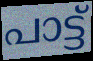
പാട്ട്